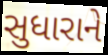
સુધારાને